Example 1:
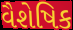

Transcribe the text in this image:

વૈશેષિક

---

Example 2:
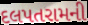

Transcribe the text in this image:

દલપતરામની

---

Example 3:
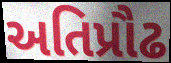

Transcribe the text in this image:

અતિપ્રૌઢ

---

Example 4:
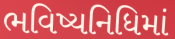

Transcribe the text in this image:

ભવિષ્યનિધિમાં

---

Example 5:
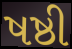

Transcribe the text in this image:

ષષ્ઠી